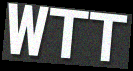
WTT